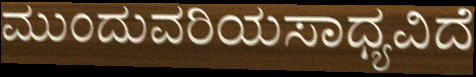
ಮುಂದುವರಿಯಸಾಧ್ಯವಿದೆ